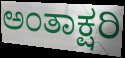
ಅಂತಾಕ್ಷರಿ